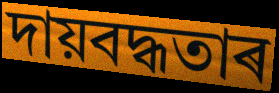
দায়বদ্ধতাৰ